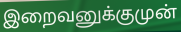
இறைவனுக்குமுன்